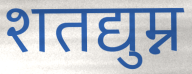
शतद्युम्न